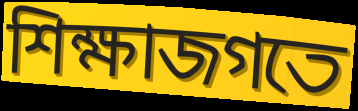
শিক্ষাজগতে